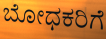
ಬೋಧಕರಿಗೆ